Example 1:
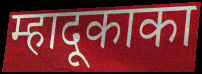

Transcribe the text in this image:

म्हादूकाका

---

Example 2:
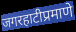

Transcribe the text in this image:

जगरहाटीप्रमाणे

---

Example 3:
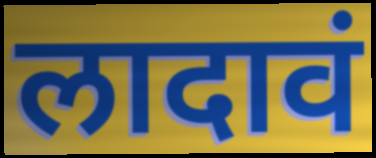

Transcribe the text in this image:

लादावं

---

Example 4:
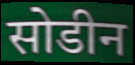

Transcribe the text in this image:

सोडीन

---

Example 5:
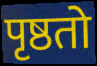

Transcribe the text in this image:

पृष्ठतो